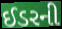
ઈડરની